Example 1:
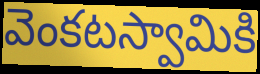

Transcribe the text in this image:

వెంకటస్వామికి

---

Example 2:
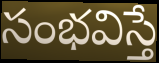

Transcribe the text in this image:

సంభవిస్తే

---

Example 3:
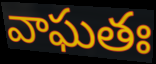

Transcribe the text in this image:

వాఘతః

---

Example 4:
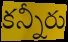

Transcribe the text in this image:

కన్నీరు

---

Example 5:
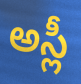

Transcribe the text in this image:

అస్లీ